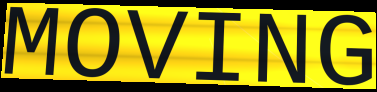
MOVING